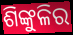
ଶିଙ୍କୁଳିର